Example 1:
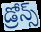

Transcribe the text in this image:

డ్రోన్స్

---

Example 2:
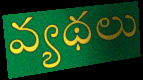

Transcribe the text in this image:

వ్యథలు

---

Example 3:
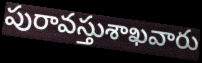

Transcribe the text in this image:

పురావస్తుశాఖవారు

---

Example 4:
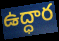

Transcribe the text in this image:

ఉద్ధార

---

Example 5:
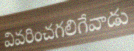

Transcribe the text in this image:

వివరించగలిగేవాడు